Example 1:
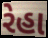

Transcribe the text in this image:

રેહા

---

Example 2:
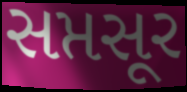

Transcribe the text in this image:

સપ્તસૂર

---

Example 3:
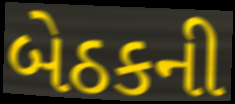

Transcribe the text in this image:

બેઠકની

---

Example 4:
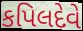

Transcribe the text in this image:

કપિલદેવે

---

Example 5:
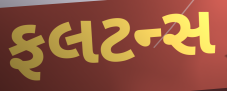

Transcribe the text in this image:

ફલટન્સ